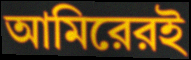
আমিরেরই